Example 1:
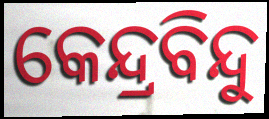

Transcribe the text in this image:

କେନ୍ଦ୍ରବିନ୍ଦୁ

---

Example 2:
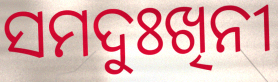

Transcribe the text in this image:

ସମଦୁଃଖିନୀ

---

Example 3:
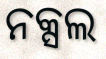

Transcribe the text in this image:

ନକ୍ସଲ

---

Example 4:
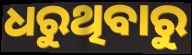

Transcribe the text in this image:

ଧରୁଥିବାରୁ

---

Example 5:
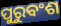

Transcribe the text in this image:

ପୁରୁବଂଶ